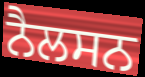
ਨੈਲਸਨ